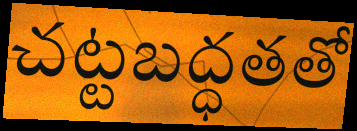
చట్టబద్ధతతో